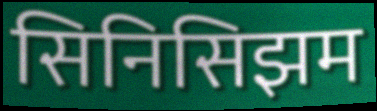
सिनिसिझम